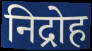
निद्रोह